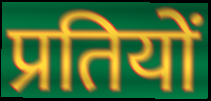
प्रतियों